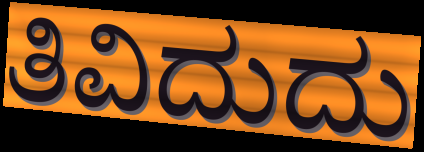
ತಿವಿದುದು